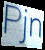
Pjn